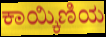
ಕಾಯ್ಕಿಣಿಯ